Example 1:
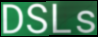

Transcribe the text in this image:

DSLs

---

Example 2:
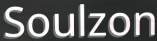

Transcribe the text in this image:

Soulzon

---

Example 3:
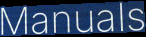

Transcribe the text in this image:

Manuals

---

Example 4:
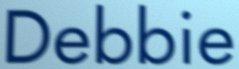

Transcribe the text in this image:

Debbie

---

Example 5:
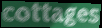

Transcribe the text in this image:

cottages